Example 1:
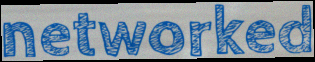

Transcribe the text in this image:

networked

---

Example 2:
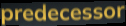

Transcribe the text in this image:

predecessor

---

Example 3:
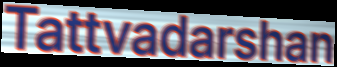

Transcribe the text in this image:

Tattvadarshan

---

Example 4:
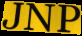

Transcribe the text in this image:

JNP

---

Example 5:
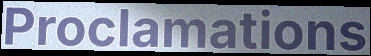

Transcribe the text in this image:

Proclamations